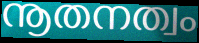
നൂതനത്വം